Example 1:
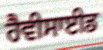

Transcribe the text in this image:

ਹੈਵੀਸਾਈਡ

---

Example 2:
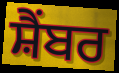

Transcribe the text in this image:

ਸ਼ੈਂਬਰ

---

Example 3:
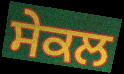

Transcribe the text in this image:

ਸੇਕਲ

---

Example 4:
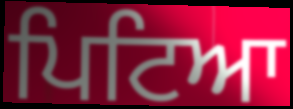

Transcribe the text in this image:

ਪਿਟਿਆ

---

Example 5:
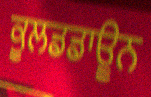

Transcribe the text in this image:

ਕੂਲਡਡਾਊਨ